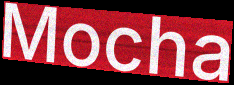
Mocha